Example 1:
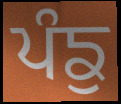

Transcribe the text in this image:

ਪੰਙੁ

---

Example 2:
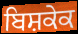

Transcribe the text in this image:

ਬਿਸ਼ਕੇਕ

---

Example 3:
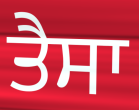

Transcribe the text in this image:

ਤੈਸਾ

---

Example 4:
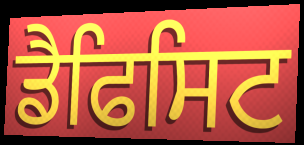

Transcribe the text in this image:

ਡੈਫਿਸਿਟ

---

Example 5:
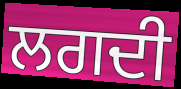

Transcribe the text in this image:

ਲਗਦੀ